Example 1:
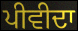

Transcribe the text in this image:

ਪੀਵੀਦਾ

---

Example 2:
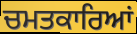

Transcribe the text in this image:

ਚਮਤਕਾਰਿਆਂ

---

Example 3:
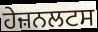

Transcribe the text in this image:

ਹੇਜ਼ਨਲਟਸ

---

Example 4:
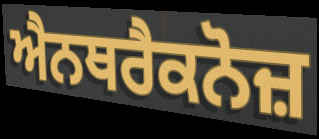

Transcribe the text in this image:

ਐਨਥਰੈਕਨੋਜ਼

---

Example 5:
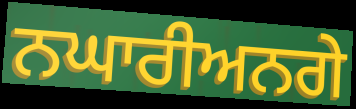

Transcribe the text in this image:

ਨਘਾਰੀਅਨਗੇ